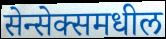
सेन्सेक्समधील